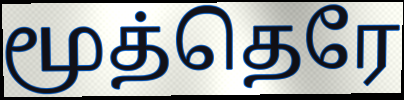
மூத்தெரே